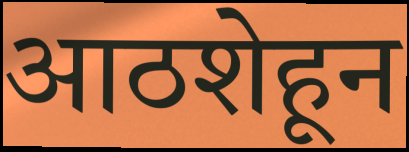
आठशेहून